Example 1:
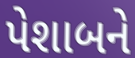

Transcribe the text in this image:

પેશાબને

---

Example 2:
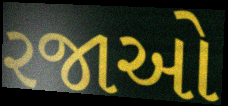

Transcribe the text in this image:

રજાઓ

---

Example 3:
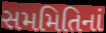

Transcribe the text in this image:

સમમિતિનાં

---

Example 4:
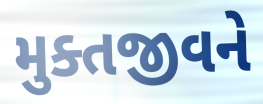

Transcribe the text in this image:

મુક્તજીવને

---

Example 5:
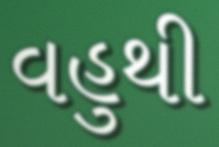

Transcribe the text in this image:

વહુથી